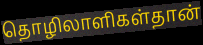
தொழிலாளிகள்தான்